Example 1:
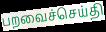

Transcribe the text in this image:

பறவைச்செய்தி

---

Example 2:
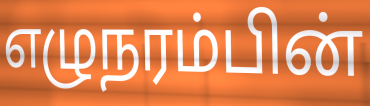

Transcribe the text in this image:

எழுநரம்பின்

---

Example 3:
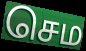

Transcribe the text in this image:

செம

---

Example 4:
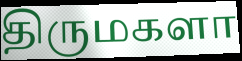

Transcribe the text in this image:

திருமகளா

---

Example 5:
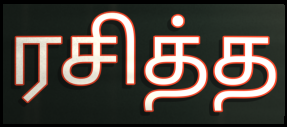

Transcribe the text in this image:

ரசித்த